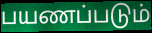
பயணப்படும்